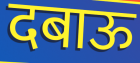
दबाऊ